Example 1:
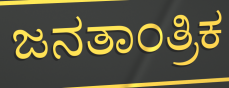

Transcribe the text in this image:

ಜನತಾಂತ್ರಿಕ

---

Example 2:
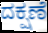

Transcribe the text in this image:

ದಕ್ಷಣೆ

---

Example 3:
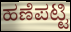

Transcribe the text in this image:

ಹಣೆಪಟ್ಟಿ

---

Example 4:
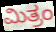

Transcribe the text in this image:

ಮಿತ್ರಂ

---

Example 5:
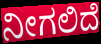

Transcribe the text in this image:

ನೀಗಲಿದೆ